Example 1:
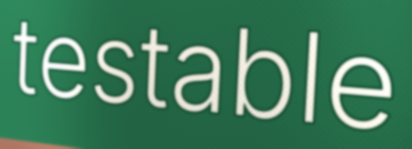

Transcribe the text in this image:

testable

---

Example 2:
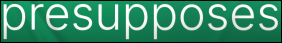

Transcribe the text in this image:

presupposes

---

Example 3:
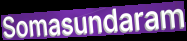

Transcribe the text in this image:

Somasundaram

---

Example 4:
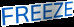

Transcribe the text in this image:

FREEZE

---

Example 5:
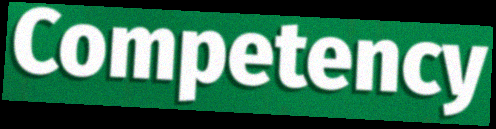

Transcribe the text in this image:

Competency